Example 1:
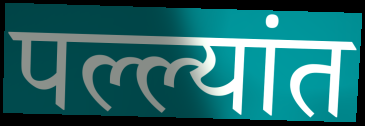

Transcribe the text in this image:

पल्ल्यांत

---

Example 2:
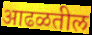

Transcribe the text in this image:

आढळतील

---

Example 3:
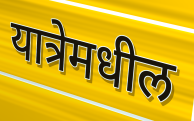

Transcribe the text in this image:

यात्रेमधील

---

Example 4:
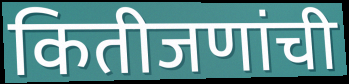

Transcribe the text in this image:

कितीजणांची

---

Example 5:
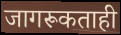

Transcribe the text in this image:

जागरूकताही